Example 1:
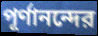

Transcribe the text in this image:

পূর্ণানন্দের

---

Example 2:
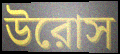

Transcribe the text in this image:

উরোস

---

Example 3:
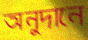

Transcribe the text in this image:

অনুদানে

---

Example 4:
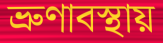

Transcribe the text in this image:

ভ্রুণাবস্থায়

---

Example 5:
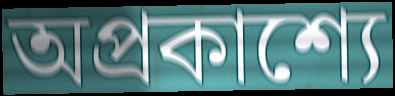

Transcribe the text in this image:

অপ্রকাশ্যে